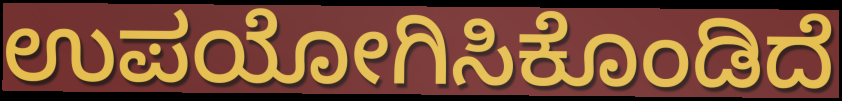
ಉಪಯೋಗಿಸಿಕೊಂಡಿದೆ